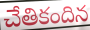
చేతికందిన